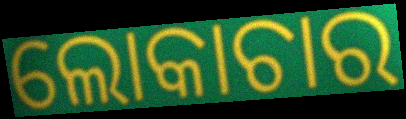
ଲୋକାଚାର